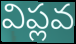
విప్లవ